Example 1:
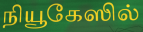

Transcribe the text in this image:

நியூகேஸில்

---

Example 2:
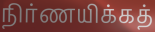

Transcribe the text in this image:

நிர்ணயிக்கத்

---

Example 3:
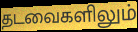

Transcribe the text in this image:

தடவைகளிலும்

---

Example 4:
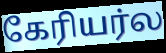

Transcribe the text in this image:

கேரியர்ல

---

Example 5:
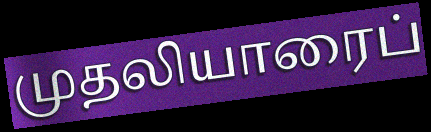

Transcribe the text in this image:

முதலியாரைப்